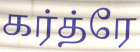
கர்த்ரே